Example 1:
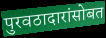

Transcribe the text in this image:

पुरवठादारांसोबत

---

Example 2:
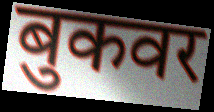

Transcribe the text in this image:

बुकवर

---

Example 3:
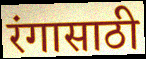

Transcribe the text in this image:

रंगासाठी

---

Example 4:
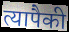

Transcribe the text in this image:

त्यापैकी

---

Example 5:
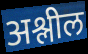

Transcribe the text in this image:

अश्लील